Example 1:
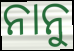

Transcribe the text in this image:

ନାନୁ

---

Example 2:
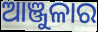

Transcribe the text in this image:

ଆଞ୍ଜୁଳାର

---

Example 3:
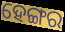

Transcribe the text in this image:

ହେଙ୍ଗର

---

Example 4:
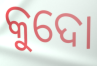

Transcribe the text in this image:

କୁଦୋ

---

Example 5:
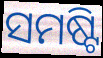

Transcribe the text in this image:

ସମଷ୍ଟି